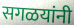
सगळयांनी